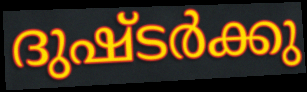
ദുഷ്ടർക്കു